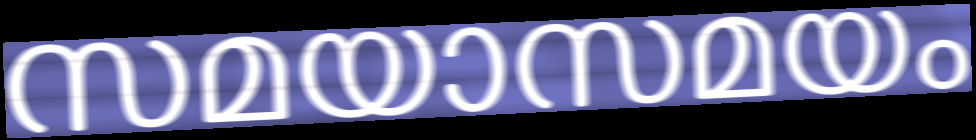
സമയാസമയം